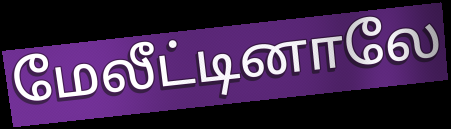
மேலீட்டினாலே